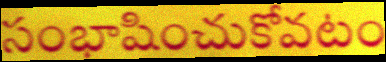
సంభాషించుకోవటం